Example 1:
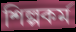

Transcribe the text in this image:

শিল্পকর্ম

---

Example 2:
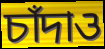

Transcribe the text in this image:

চাঁদাও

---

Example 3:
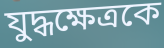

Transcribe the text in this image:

যুদ্ধক্ষেত্রকে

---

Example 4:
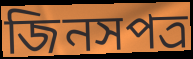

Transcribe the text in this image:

জিনসপত্র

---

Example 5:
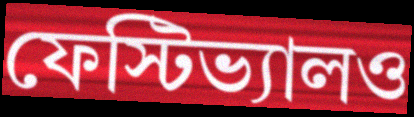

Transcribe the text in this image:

ফেস্টিভ্যালও